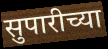
सुपारीच्या